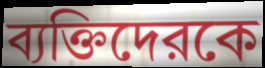
ব্যক্তিদেরকে